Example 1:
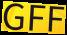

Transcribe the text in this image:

GFF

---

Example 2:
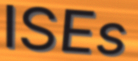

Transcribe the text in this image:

ISEs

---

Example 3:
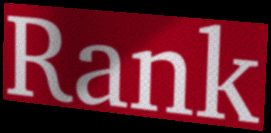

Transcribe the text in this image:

Rank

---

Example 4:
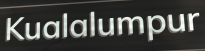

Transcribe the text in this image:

Kualalumpur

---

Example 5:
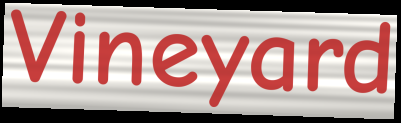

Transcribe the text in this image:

Vineyard